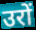
उरों